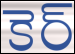
కెర్